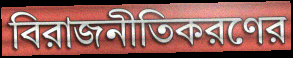
বিরাজনীতিকরণের